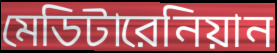
মেডিটারেনিয়ান